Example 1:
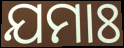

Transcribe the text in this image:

ଯମାଃ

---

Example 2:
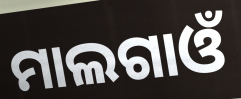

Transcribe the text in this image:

ମାଲଗାଓଁ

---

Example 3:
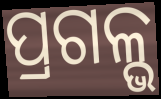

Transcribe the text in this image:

ପ୍ରଗଳ୍ଭ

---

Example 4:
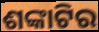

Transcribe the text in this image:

ଶଙ୍କାଟିର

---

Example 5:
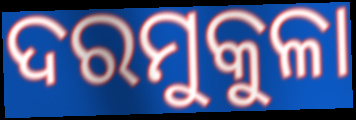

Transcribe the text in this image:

ଦରମୁକୁଳା